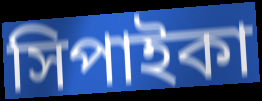
সিপাইকা